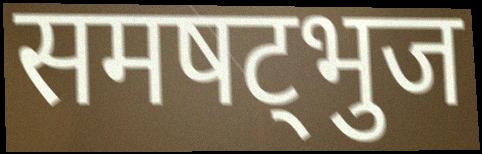
समषट्भुज